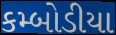
કમ્બોડીયા